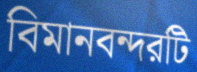
বিমানবন্দরটি